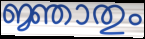
ജ്ഞാതും